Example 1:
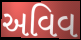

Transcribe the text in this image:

અવિવ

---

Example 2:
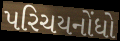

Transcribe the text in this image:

પરિચયનોંધો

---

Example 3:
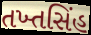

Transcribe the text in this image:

તખ્તસિંહ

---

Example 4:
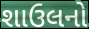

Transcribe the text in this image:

શાઉલનો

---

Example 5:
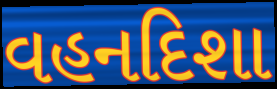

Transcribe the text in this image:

વહનદિશા